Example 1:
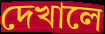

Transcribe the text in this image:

দেখালে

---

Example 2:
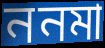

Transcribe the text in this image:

ননমা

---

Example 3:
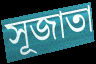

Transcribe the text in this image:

সূজাতা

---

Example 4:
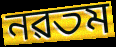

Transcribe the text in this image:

নৱতম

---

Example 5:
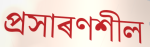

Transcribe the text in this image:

প্ৰসাৰণশীল